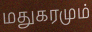
மதுகரமும்